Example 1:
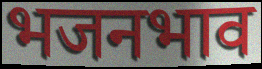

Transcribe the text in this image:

भजनभाव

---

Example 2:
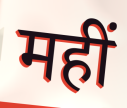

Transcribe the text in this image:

महीं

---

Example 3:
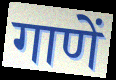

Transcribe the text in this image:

गाणें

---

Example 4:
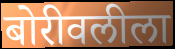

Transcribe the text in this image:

बोरीवलीला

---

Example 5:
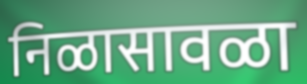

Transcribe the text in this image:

निळासावळा